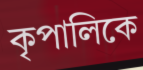
কৃপালিকে